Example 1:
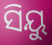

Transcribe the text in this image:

ସିୟୁ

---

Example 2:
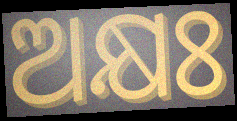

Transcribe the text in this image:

ଅକ୍ଷଃ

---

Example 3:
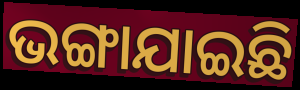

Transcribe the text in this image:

ଭଙ୍ଗାଯାଇଛି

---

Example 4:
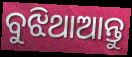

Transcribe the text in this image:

ବୁଝିଥାଆନ୍ତୁ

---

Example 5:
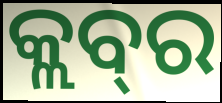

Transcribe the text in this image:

କ୍ଲବ୍‌ର